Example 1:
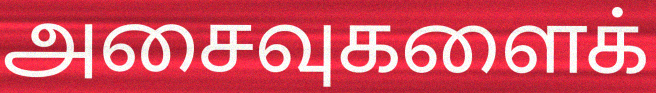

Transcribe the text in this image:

அசைவுகளைக்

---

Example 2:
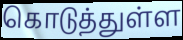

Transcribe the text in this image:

கொடுத்துள்ள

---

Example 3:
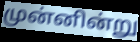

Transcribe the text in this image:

முன்னின்று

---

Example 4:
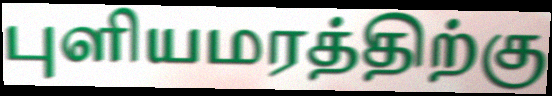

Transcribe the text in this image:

புளியமரத்திற்கு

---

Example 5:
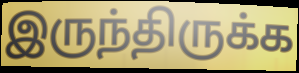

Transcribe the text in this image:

இருந்திருக்க